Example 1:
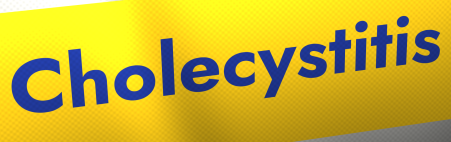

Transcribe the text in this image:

Cholecystitis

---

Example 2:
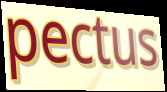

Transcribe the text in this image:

pectus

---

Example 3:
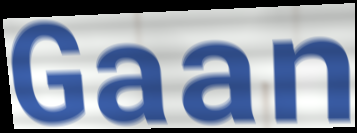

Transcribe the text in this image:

Gaan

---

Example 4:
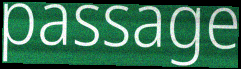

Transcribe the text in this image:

passage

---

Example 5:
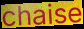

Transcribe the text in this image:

chaise